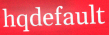
hqdefault